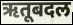
ऋतूबदल